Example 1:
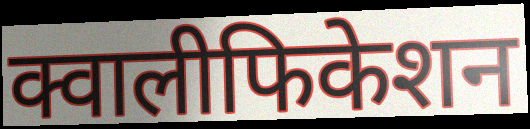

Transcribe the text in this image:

क्वालीफिकेशन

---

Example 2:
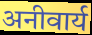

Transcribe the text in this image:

अनीवार्य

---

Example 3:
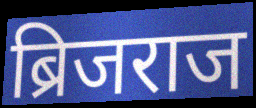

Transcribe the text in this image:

ब्रिजराज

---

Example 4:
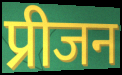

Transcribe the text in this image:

प्रीजन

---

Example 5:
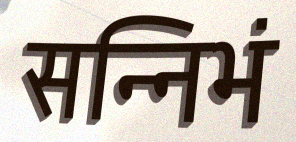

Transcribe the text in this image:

सन्निभं